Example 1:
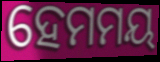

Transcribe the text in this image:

ହେମମୟ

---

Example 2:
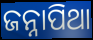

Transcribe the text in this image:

ଜନ୍ନାପିଥା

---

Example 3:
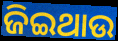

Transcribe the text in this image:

ଜିଇଥାଉ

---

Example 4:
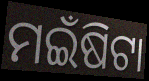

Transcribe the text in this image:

ମଇଁଷିଟା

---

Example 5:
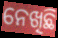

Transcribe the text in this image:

ନେଖିଛି